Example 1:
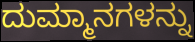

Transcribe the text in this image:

ದುಮ್ಮಾನಗಳನ್ನು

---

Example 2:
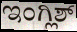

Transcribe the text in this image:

ಇಂಗ್ಲಿಶ್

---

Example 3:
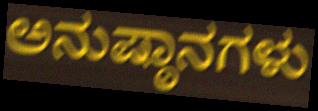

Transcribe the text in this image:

ಅನುಷ್ಠಾನಗಳು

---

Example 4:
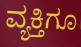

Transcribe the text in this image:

ವ್ಯಕ್ತಿಗೂ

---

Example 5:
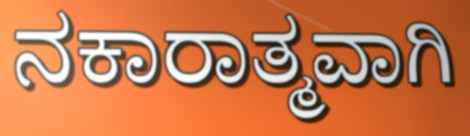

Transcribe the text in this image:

ನಕಾರಾತ್ಮವಾಗಿ